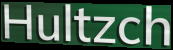
Hultzch